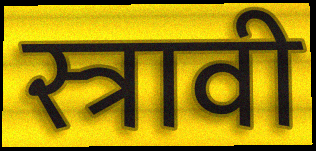
स्त्रावी